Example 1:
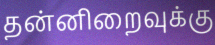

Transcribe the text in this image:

தன்னிறைவுக்கு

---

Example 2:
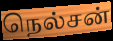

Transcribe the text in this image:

நெல்சன்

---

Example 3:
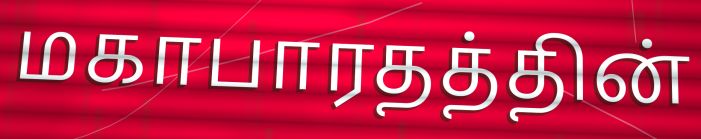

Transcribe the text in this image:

மகாபாரதத்தின்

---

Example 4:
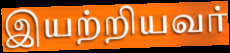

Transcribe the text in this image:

இயற்றியவர்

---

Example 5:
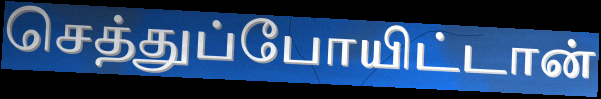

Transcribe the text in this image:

செத்துப்போயிட்டான்